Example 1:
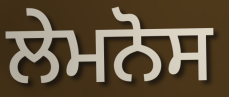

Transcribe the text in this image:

ਲੇਮਨੋਸ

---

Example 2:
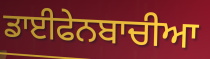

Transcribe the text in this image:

ਡਾਈਫੇਨਬਾਚੀਆ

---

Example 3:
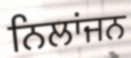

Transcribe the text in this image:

ਨਿਲਾਂਜਨ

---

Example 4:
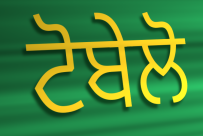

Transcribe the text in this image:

ਟੋਬੇਲੋ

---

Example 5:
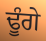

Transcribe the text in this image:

ਢੂੰਗੇ